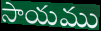
సాయము